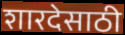
शारदेसाठी